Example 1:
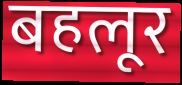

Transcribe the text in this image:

बहलूर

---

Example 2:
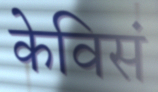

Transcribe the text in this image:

केविसं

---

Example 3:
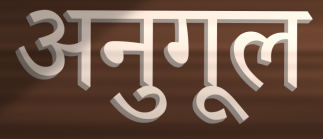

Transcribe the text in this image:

अनुगूल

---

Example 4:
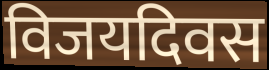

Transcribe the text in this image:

विजयदिवस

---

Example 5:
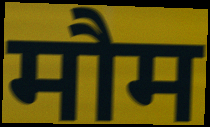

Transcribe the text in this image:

मौम